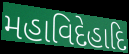
મહાવિદેહાદિ